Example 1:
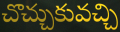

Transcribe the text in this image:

చొచ్చుకువచ్చి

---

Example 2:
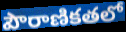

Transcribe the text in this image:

పౌరాణికతలో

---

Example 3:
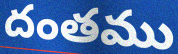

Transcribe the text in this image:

దంతము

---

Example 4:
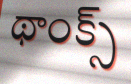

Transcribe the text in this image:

థాంక్స్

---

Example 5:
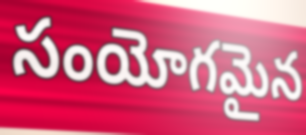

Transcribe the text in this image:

సంయోగమైన